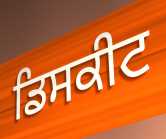
ਡਿਸਕੀਟ